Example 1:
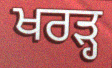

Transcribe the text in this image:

ਖਰੜ੍ਹ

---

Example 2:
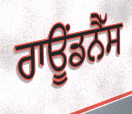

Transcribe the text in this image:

ਰਾਊਂਡਨੈੱਸ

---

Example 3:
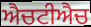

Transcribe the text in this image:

ਐਚਟੀਐਚ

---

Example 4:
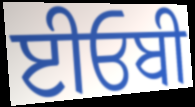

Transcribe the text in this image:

ਈਓਬੀ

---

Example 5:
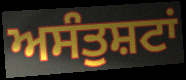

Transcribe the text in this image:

ਅਸੰਤੁਸ਼ਟਾਂ